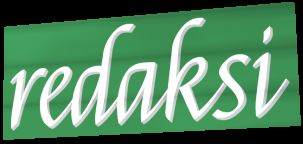
redaksi